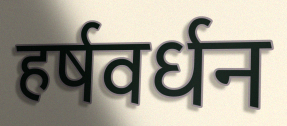
हर्षवर्धन